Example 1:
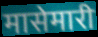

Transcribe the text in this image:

मासेमारी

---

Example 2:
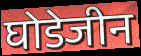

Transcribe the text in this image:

घोडेजीन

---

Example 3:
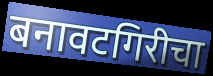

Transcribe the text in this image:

बनावटगिरीचा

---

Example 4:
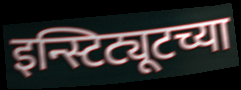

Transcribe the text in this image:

इन्स्टिट्यूटच्या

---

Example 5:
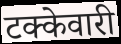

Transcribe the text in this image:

टक्केवारी